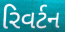
રિવર્ટન